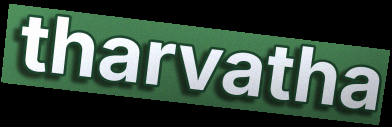
tharvatha